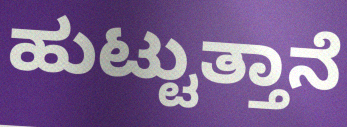
ಹುಟ್ಟುತ್ತಾನೆ